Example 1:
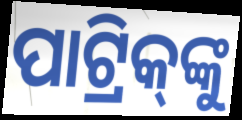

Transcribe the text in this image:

ପାଟ୍ରିକ୍‌ଙ୍କୁ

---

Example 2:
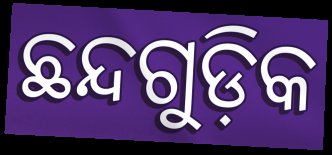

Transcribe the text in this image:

ଛନ୍ଦଗୁଡ଼ିକ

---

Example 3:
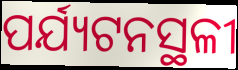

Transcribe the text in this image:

ପର୍ଯ୍ୟଟନସ୍ଥଳୀ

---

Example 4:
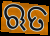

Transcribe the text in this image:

ଋତ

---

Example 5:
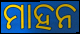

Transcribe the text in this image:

ମାହନ